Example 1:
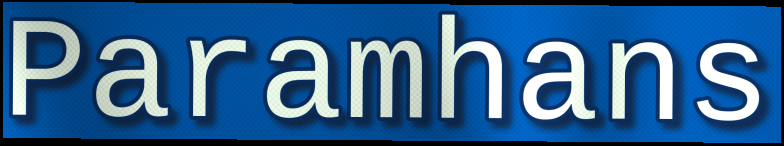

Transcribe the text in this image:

Paramhans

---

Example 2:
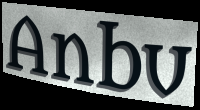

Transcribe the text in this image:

Anbu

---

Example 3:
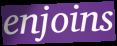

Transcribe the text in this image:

enjoins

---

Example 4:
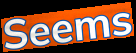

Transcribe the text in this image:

Seems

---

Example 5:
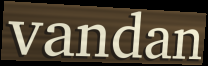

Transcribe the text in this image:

vandan